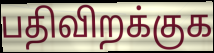
பதிவிறக்குக